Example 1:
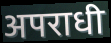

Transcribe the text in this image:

अपराधी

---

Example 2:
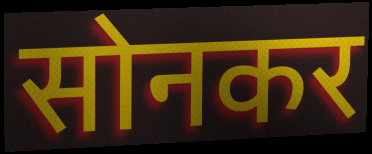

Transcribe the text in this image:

सोनकर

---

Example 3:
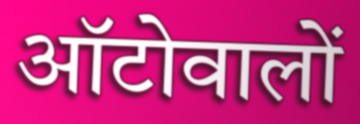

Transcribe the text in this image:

ऑटोवालों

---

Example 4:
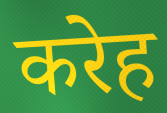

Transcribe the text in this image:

करेह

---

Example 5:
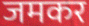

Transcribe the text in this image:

जमकर